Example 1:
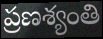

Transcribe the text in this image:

ప్రణశ్యంతి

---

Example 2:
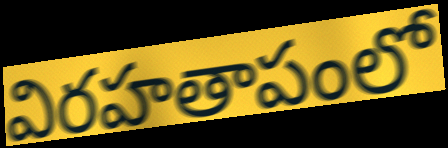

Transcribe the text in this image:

విరహతాపంలో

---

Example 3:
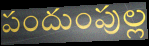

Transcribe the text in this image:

పందుంపుల్ల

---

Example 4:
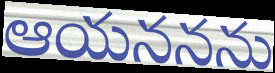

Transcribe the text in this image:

ఆయననను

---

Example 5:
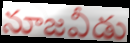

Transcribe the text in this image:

నూజవీడు